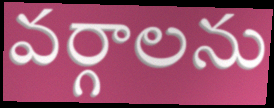
వర్గాలను